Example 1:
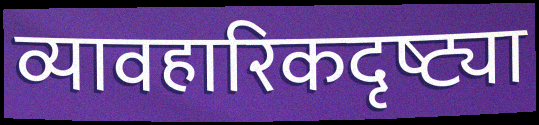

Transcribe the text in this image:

व्यावहारिकदृष्ट्या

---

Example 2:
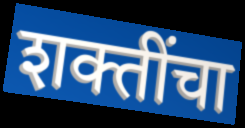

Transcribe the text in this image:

शक्तींचा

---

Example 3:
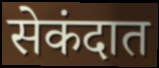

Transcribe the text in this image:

सेकंदात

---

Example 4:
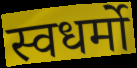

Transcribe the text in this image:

स्वधर्मो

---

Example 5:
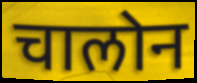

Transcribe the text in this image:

चालोन